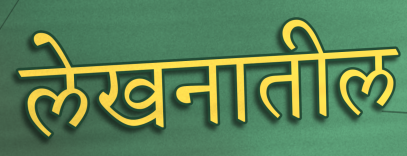
लेखनातील